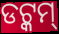
ଡଟ୍କମ୍